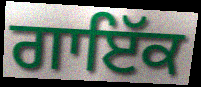
ਗਾਇੱਕ